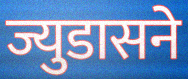
ज्युडासने